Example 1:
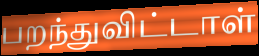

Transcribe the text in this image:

பறந்துவிட்டாள்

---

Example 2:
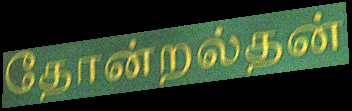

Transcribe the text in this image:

தோன்றல்தன்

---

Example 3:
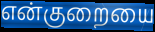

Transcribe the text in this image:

என்குறையை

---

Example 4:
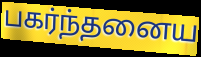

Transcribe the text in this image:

பகர்ந்தனைய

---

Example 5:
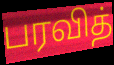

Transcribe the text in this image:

பரவித்